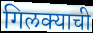
गिलक्याची